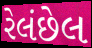
રેલંછેલ